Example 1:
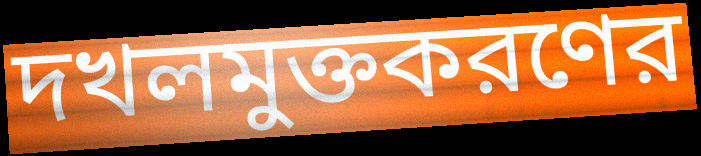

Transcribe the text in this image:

দখলমুক্তকরণের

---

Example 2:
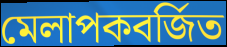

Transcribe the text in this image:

মেলাপকবর্জিত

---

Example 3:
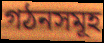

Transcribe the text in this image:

গঠনসমূহ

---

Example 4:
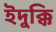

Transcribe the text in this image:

ইদুক্কি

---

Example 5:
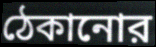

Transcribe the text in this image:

ঠেকানোর